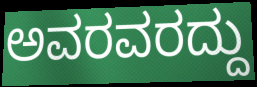
ಅವರವರದ್ದು